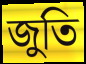
জুতি